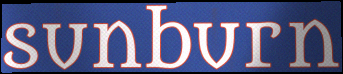
sunburn